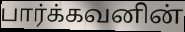
பார்க்கவனின்